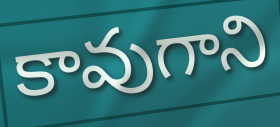
కావుగాని